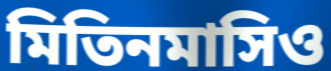
মিতিনমাসিও